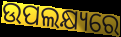
ଉପଲକ୍ଷ୍ୟରେ